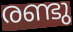
രണ്ടു